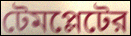
টেমপ্লেটের